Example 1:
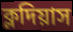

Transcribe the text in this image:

ক্লদিয়াস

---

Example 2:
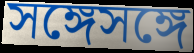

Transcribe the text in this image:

সঙ্গেসঙ্গে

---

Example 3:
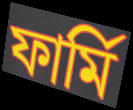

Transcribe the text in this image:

ফার্মি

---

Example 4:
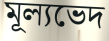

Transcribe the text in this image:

মূল্যভেদ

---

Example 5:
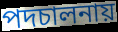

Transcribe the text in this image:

পদচালনায়